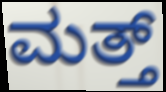
ಮತ್ತ್